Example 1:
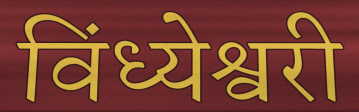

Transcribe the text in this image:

विंध्येश्वरी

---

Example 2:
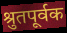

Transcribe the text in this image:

श्रुतपूर्वक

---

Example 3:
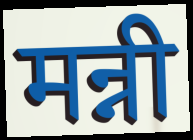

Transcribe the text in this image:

मन्नी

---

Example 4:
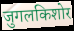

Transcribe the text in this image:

जुगलकिशोर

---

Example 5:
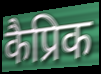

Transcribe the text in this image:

कैप्रिक